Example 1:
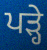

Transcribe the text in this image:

ਪਡ਼੍ਹੇ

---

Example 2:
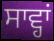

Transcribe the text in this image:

ਸਾਵ੍ਹਾਂ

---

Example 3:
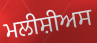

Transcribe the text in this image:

ਮਲੀਸ਼ੀਅਸ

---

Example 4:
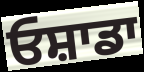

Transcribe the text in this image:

ਓਸ਼ਾਡਾ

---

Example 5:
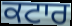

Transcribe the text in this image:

ਕਟਾਰ